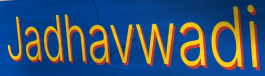
Jadhavwadi